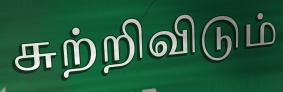
சுற்றிவிடும்